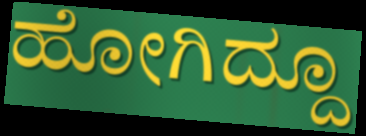
ಹೋಗಿದ್ದೂ